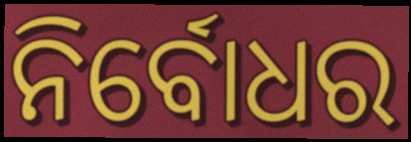
ନିର୍ବୋଧର